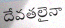
దేవతలైనా